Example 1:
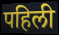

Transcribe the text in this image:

पहिली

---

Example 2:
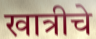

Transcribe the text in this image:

खात्रीचे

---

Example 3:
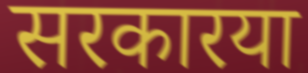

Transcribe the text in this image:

सरकारया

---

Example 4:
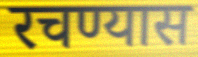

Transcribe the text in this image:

रचण्यास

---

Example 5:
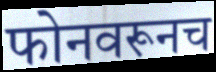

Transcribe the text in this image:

फोनवरूनच